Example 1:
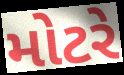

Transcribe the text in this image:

મોટરે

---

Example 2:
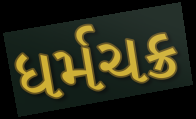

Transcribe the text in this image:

ધર્મચક્ર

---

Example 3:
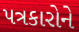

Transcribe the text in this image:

પત્રકારોને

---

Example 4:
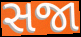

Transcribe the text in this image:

સજા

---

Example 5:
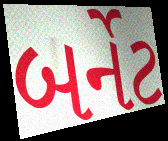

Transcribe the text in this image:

બર્નેટ